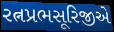
રત્નપ્રભસૂરિજીએ